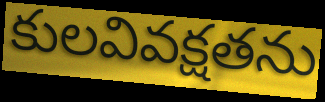
కులవివక్షతను